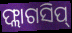
ଫ୍ଲାଗସିପ୍